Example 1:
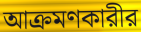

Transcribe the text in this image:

আক্রমণকারীর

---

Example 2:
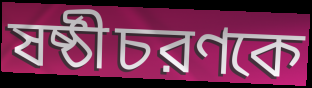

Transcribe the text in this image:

ষষ্ঠীচরণকে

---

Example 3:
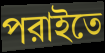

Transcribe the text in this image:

পরাইতে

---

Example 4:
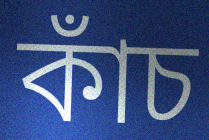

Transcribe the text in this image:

কাঁচ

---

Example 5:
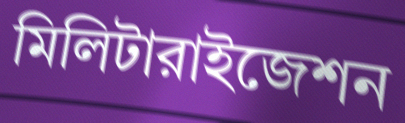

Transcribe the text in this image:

মিলিটারাইজেশন